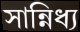
সান্নিধ্য